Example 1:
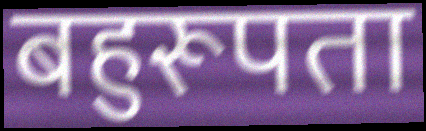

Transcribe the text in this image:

बहुरूपता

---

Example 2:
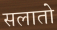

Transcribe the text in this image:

सलातो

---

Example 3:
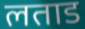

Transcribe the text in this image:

लताड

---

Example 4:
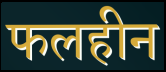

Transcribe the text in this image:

फलहीन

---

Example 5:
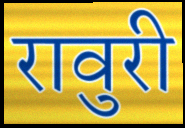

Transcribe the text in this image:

रावुरी